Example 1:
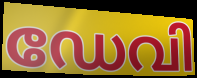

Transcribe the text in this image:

ഡേവി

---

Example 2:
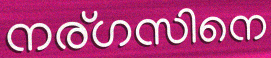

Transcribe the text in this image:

നര്ഗസിനെ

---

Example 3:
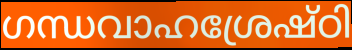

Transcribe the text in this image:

ഗന്ധവാഹശ്രേഷ്ഠി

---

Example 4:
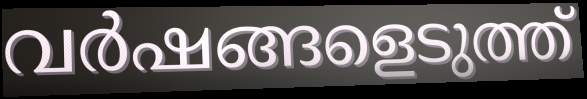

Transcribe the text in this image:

വർഷങ്ങളെടുത്ത്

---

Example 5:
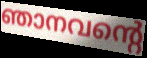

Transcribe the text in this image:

ഞാനവന്റെ